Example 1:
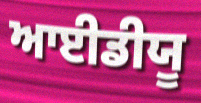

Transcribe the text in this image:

ਆਈਡੀਯੂ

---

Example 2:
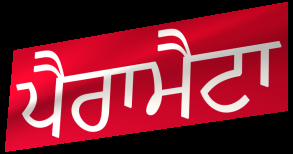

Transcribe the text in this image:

ਪੈਰਾਮੈਟਾ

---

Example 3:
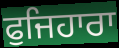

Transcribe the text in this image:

ਫੁਜਿਹਾਰਾ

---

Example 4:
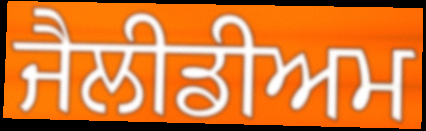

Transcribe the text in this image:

ਜੈਲੀਡੀਅਮ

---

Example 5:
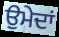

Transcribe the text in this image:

ਉਮੇਦਾਂ